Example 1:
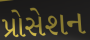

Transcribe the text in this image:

પ્રોસેશન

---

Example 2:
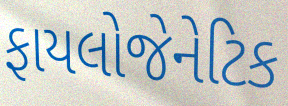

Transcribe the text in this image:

ફાયલોજેનેટિક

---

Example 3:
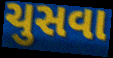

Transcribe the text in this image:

ચુસવા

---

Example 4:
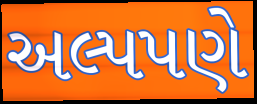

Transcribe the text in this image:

અલ્પપણે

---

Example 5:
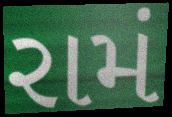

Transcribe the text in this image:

રામં